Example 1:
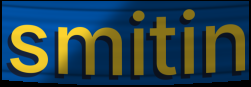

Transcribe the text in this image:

smitin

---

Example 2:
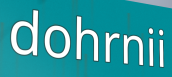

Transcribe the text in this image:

dohrnii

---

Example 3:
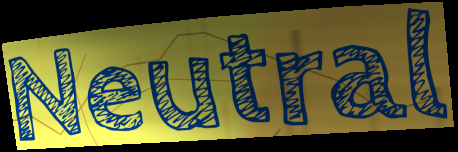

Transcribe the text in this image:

Neutral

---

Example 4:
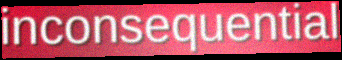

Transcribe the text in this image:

inconsequential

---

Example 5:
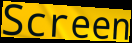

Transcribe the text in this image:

Screen